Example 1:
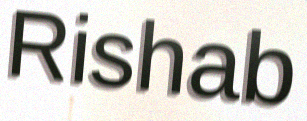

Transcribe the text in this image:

Rishab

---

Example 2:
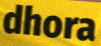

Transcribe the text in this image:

dhora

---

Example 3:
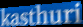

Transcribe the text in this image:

kasthuri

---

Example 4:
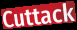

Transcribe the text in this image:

Cuttack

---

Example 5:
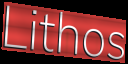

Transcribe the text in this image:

Lithos